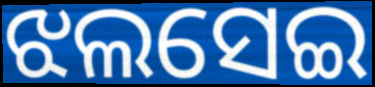
ଝଲସେଇ